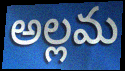
అల్లమ